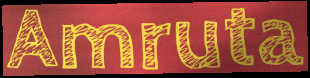
Amruta